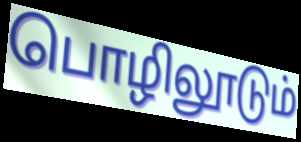
பொழிலூடும்